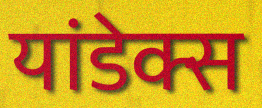
यांडेक्स